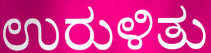
ಉರುಳಿತು